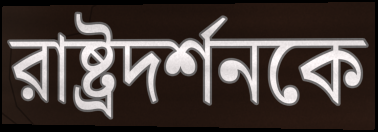
রাষ্ট্রদর্শনকে